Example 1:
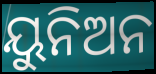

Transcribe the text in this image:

ୟୁନିଅନ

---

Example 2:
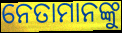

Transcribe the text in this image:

ନେତାମାନଙ୍କୁ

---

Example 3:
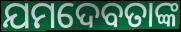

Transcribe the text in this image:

ଯମଦେବତାଙ୍କ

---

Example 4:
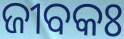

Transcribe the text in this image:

ଜୀବକଃ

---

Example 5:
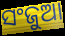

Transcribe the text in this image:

ସଂଜୁଆ